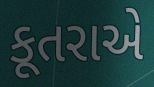
કૂતરાએ